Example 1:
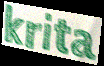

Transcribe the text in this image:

krita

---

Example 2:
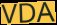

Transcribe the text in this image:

VDA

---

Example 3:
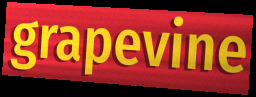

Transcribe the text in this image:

grapevine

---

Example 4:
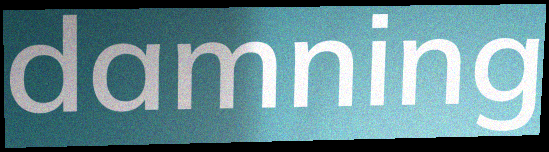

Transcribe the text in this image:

damning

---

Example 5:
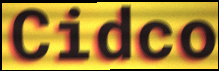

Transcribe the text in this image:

Cidco